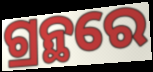
ଗ୍ରନ୍ଥରେ